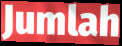
Jumlah